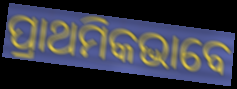
ପ୍ରାଥମିକଭାବେ